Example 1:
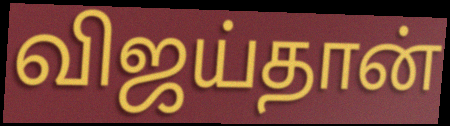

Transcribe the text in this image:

விஜய்தான்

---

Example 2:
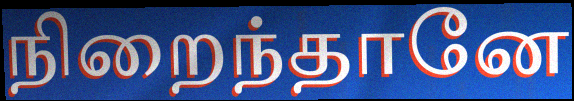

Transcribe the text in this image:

நிறைந்தானே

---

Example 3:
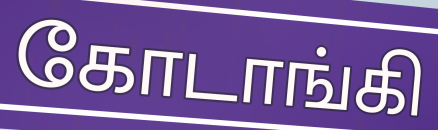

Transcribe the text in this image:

கோடாங்கி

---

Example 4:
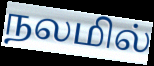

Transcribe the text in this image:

நலமில்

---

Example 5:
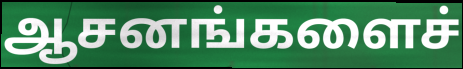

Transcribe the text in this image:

ஆசனங்களைச்